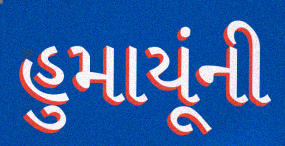
હુમાયૂંની